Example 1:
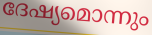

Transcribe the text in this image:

ദേഷ്യമൊന്നും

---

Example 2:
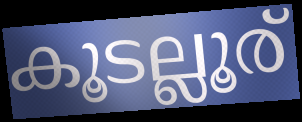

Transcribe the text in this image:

കൂടല്ലൂര്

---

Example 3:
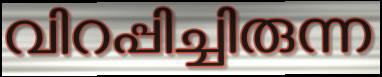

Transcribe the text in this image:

വിറപ്പിച്ചിരുന്ന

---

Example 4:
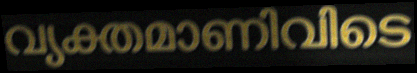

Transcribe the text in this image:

വ്യക്തമാണിവിടെ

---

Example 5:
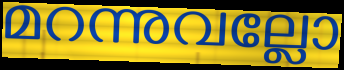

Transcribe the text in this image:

മറന്നുവല്ലോ